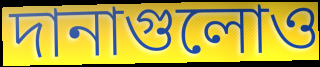
দানাগুলোও